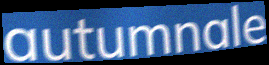
autumnale